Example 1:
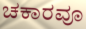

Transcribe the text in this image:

ಚಕಾರವೂ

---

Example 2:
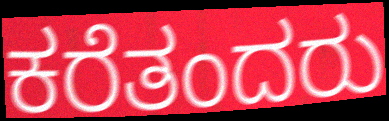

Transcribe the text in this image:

ಕರೆತಂದರು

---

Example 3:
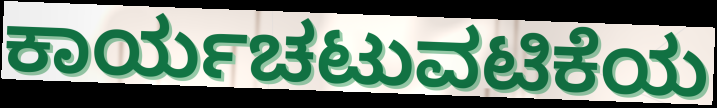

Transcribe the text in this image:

ಕಾರ್ಯಚಟುವಟಿಕೆಯ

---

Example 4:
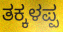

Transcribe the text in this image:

ತಕ್ಕಳಪ್ಪ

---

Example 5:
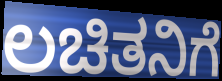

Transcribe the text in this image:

ಲಚಿತನಿಗೆ